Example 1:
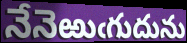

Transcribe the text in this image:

నేనెఱుఁగుదును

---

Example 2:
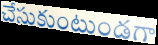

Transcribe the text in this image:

చేసుకుంటుండగా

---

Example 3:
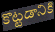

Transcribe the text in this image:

కొట్టడానికి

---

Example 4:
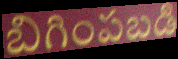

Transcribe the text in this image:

బిగింపబడి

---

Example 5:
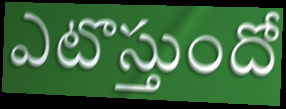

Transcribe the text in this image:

ఎటొస్తుందో